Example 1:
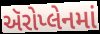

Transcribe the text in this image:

ઍરોપ્લેનમાં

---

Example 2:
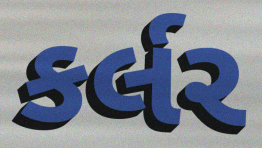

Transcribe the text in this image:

કર્લર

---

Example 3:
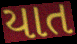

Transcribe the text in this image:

યાત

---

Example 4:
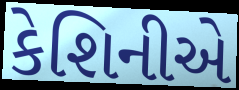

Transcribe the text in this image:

કેશિનીએ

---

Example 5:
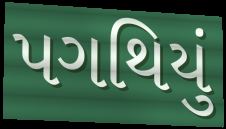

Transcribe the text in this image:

પગથિયું